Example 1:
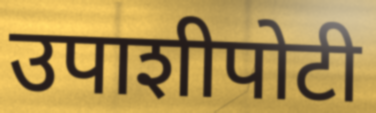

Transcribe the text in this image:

उपाशीपोटी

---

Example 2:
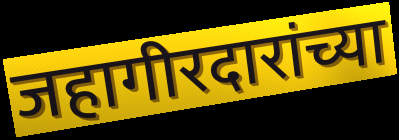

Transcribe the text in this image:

जहागीरदारांच्या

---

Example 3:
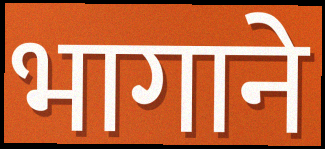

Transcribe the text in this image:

भागाने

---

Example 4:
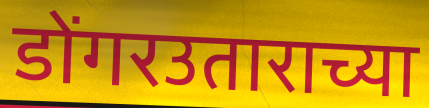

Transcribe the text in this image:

डोंगरउताराच्या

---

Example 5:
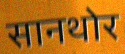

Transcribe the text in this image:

सानथोर